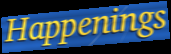
Happenings